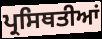
ਪ੍ਰਸਿਥਤੀਆਂ